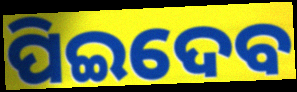
ପିଇଦେବ